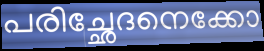
പരിച്ഛേദനെക്കോ